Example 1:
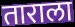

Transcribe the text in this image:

ताराला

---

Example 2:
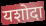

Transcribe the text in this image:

यशोदा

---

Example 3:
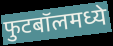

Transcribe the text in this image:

फुटबॉलमध्ये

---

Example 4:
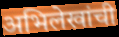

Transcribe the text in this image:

अभिलेखांची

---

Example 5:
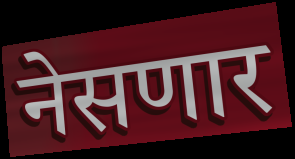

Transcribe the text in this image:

नेसणार